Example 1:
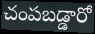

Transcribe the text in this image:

చంపబడ్డారో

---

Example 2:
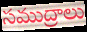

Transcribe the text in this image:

సముద్రాలు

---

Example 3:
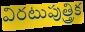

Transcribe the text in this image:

విరటుపుత్త్రిక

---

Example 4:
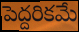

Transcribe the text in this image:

పెద్దరికమే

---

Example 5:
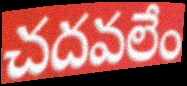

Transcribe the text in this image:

చదవలేం